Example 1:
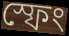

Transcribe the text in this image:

স্ফেং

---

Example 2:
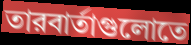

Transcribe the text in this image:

তারবার্তাগুলোতে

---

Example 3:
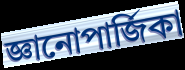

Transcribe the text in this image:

জ্ঞানোপার্জিকা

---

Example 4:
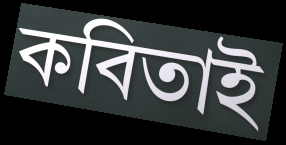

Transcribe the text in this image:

কবিতাই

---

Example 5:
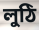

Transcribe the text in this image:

লুঠি